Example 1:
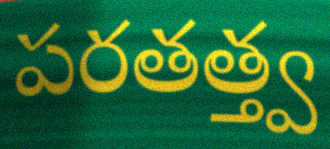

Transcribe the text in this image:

పరతత్త్వ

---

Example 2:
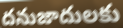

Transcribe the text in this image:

దనుజాదులకు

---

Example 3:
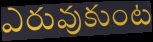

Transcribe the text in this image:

ఎరువుకుంట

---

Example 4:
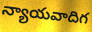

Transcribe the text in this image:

న్యాయవాదిగ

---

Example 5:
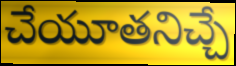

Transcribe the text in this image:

చేయూతనిచ్చే